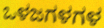
ಒಳಜಗಳಗಳ